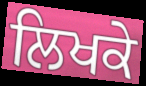
ਲਿਖਕੇ